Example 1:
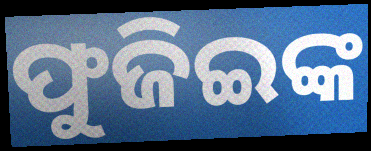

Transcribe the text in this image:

ଫୁଜିଇଙ୍କ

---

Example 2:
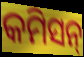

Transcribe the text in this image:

କମିସନ୍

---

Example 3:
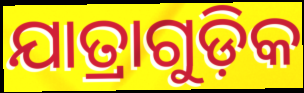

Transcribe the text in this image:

ଯାତ୍ରାଗୁଡ଼ିକ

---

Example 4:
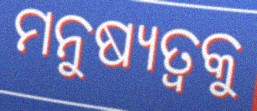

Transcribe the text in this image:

ମନୁଷ୍ୟତ୍ୱକୁ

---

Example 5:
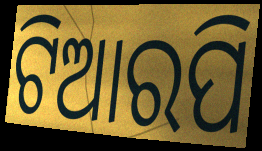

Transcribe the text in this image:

ଟିଆରପି